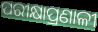
ପରୀକ୍ଷାପ୍ରଣାଳୀ